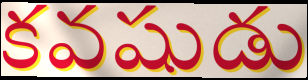
కవషుడు